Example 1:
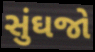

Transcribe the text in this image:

સુંઘજો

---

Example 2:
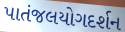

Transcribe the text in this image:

પાતંજલયોગદર્શન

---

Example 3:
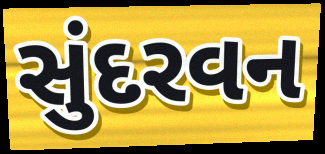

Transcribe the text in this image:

સુંદરવન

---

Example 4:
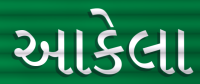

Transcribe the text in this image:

આકેલા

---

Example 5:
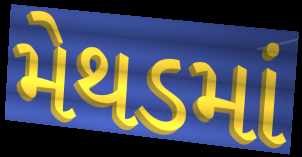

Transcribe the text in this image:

મેથડમાં